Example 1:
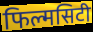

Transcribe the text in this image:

फिल्मसिटी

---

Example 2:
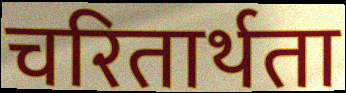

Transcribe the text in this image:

चरितार्थता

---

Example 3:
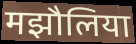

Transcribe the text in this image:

मझौलिया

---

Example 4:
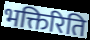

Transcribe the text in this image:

भक्तिरिति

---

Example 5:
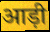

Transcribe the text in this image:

आड़ी